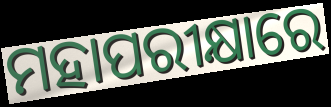
ମହାପରୀକ୍ଷାରେ